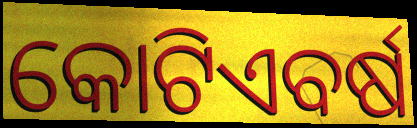
କୋଟିଏବର୍ଷ